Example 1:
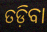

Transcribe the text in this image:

ତଡ଼ିବା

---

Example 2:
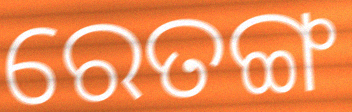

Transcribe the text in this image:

ରେତଙ୍ଗ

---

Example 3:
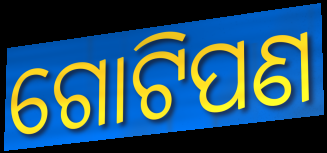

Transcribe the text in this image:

ଗୋଟିପଣ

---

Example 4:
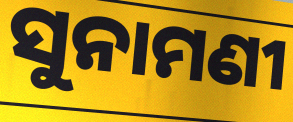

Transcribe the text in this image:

ସୁନାମଣୀ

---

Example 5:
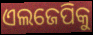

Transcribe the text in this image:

ଏଲଜେପିକୁ